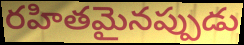
రహితమైనప్పుడు